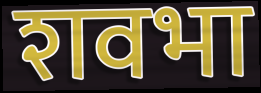
शवभा